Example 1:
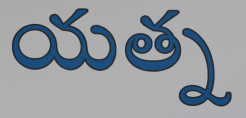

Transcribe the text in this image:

యత్న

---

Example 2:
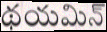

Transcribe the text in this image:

థయమిన్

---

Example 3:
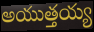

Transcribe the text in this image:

అయుత్తయ్య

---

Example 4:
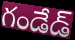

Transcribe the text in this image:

గండేడ్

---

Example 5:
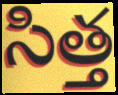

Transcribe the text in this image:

సిత్త